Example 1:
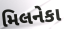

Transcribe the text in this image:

મિલનેકા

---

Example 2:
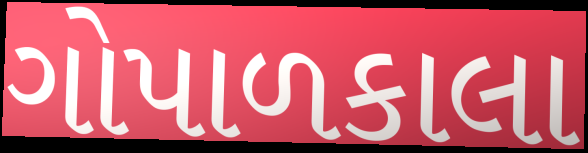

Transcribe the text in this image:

ગોપાળકાલા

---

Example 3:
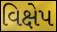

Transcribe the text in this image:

વિક્ષેપ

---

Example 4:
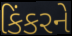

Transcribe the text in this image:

કિંકરને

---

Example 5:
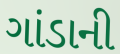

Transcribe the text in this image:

ગાંડાની